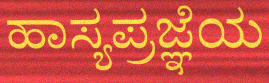
ಹಾಸ್ಯಪ್ರಜ್ಞೆಯ